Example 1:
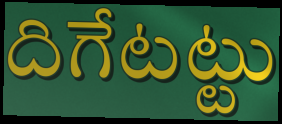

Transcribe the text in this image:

దిగేటట్టు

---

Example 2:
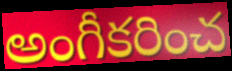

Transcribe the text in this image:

అంగీకరించ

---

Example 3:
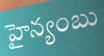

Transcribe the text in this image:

హైన్యంబు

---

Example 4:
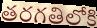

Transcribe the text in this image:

తరగతిలోకి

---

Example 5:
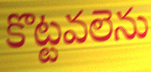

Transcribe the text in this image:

కొట్టవలెను